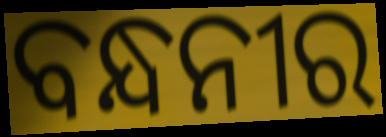
ବନ୍ଧନୀର